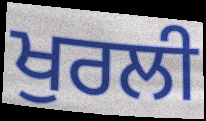
ਖੁਰਲੀ